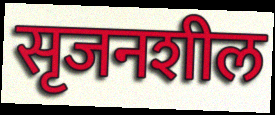
सृजनशील